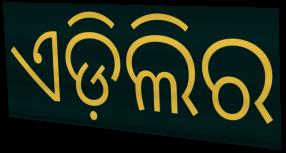
ଏଡ଼ିଲିର